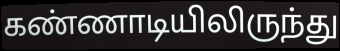
கண்ணாடியிலிருந்து